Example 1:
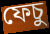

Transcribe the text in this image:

ফেচু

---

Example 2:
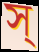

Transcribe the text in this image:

স্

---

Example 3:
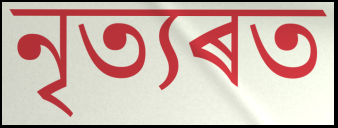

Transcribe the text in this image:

নৃত্যৰত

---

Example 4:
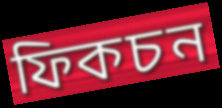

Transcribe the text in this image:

ফিকচন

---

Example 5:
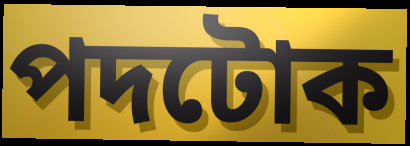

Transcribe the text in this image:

পদটোক